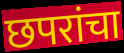
छपरांचा